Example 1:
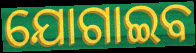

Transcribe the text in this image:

ଯୋଗାଇବ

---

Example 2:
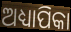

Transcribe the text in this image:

ଅଧ୍ୟାପିକା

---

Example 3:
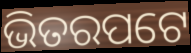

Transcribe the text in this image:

ଭିତରପଟେ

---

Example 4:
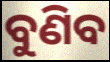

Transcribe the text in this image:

ବୁଣିବ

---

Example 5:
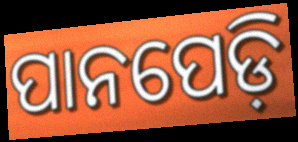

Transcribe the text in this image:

ପାନପେଡ଼ି